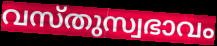
വസ്തുസ്വഭാവം